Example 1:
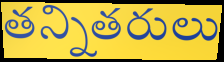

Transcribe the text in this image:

తన్నితరులు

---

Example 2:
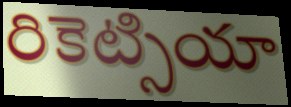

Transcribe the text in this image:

రికెట్సియా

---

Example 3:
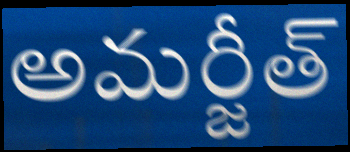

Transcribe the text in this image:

అమర్జీత్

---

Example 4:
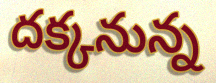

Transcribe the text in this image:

దక్కనున్న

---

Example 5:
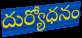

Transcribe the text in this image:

దుర్యోధనం